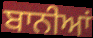
ਬਾਨੀਆਂ